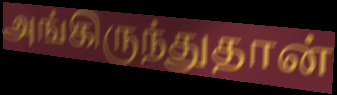
அங்கிருந்துதான்